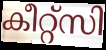
കീറ്റ്സി